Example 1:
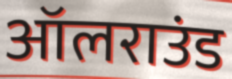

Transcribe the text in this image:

ऑलराउंड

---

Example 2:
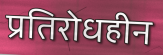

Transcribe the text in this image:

प्रतिरोधहीन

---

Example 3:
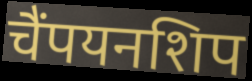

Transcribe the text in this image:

चैंपयनशिप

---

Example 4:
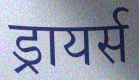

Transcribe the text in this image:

ड्रायर्स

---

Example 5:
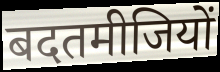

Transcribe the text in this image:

बदतमीजियों